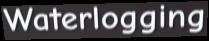
Waterlogging